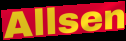
Allsen